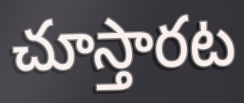
చూస్తారట